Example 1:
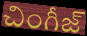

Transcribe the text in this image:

చింగీజ్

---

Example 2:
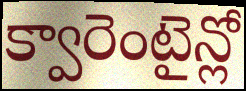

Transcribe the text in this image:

క్వారెంటైన్లో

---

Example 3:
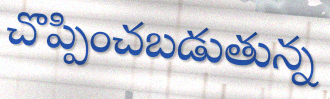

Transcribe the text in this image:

చొప్పించబడుతున్న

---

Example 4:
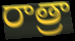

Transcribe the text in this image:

రాత్రా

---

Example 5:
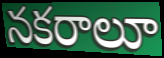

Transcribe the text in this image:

నకరాలూ